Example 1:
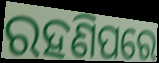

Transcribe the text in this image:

ରହଣିପରେ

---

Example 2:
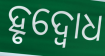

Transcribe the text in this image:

ହୃଦ୍ବୋଧ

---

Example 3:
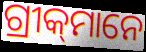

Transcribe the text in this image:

ଗ୍ରୀକ୍‌ମାନେ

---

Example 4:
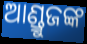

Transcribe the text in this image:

ଆଣ୍ଡ୍ରୁଜଙ୍କ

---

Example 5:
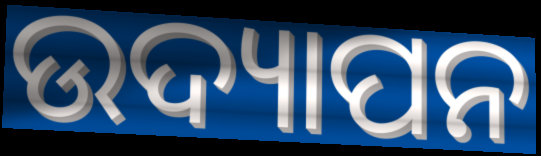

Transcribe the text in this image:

ଉଦ୍ୟାପନ